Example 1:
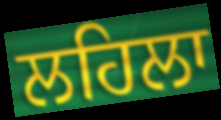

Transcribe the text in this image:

ਲਹਿਲਾ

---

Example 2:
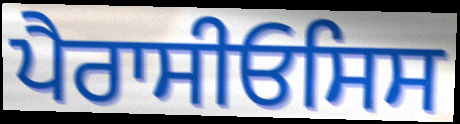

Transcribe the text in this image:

ਪੈਰਾਸੀਓਸਿਸ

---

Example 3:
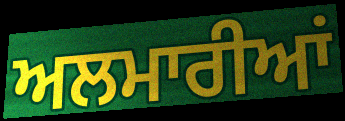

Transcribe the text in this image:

ਅਲਮਾਰੀਆਂ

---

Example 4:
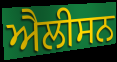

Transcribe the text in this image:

ਐਲੀਸਨ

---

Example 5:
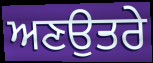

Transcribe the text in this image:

ਅਣਉਤਰੇ